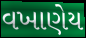
વખાણેય